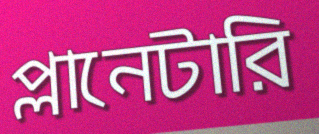
প্লানেটারি